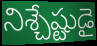
నిశ్చేష్టుడై